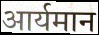
आर्यमान